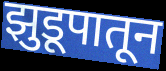
झुडूपातून